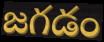
జగడం